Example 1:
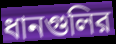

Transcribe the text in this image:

ধানগুলির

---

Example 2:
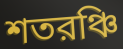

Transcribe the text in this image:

শতরঞ্চি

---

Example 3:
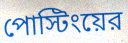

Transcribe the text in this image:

পোস্টিংয়ের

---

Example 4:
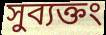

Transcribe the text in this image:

সুব্যক্তং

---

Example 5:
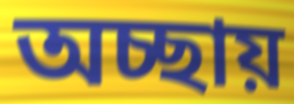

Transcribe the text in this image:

অচ্ছায়